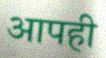
आपही